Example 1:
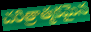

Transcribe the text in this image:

చరిత్రాత్మకమైన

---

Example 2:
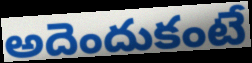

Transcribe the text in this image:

అదెందుకంటే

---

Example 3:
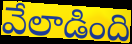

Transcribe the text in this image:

వేలాడింది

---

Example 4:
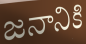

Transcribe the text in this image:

జనానికి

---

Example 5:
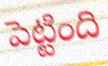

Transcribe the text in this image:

పెట్టింది